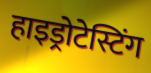
हाइड्रोटेस्टिंग